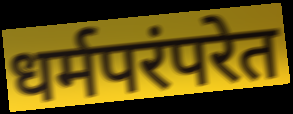
धर्मपरंपरेत